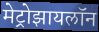
मेट्रोझायलॉन